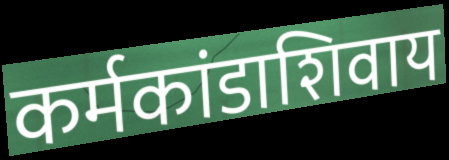
कर्मकांडाशिवाय